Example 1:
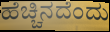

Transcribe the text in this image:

ಹೆಚ್ಚಿನದೆಂದು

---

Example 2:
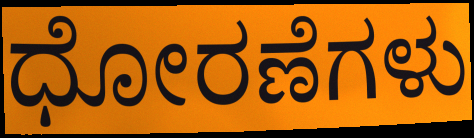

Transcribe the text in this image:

ಧೋರಣೆಗಳು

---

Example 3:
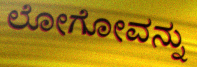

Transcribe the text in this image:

ಲೋಗೋವನ್ನು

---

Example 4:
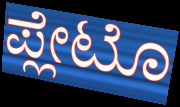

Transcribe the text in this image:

ಪ್ಲೇಟೊ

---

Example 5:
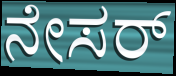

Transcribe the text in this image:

ನೇಸರ್